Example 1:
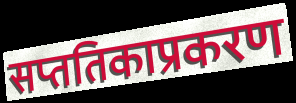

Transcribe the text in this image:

सप्ततिकाप्रकरण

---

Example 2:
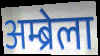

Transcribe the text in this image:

अम्‍ब्रेला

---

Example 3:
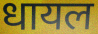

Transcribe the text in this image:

धायल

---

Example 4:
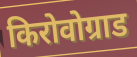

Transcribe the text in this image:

किरोवोग्राड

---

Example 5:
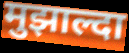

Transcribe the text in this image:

मुझाल्दा